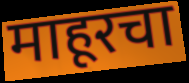
माहूरचा